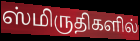
ஸ்மிருதிகளில்